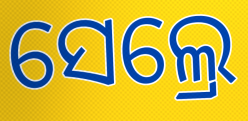
ସେଲ୍ରେ